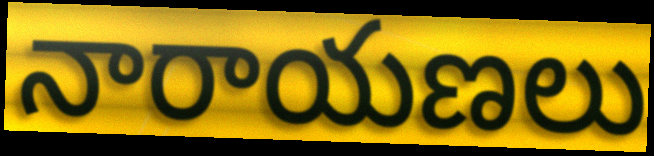
నారాయణలు